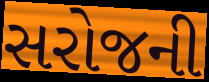
સરોજની